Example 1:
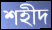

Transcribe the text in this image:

শহীদ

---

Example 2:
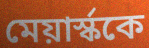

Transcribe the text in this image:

মেয়ার্স্ককে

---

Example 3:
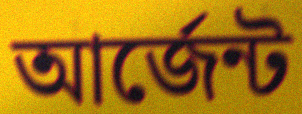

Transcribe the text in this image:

আর্জেন্ট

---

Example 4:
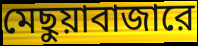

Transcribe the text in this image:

মেছুয়াবাজারে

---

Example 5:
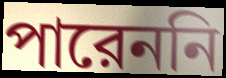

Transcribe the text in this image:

পারেননি